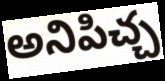
అనిపిచ్చ